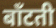
बाँटती